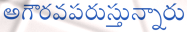
అగౌరవపరుస్తున్నారు